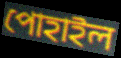
পোহাইল